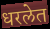
धरलेत